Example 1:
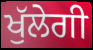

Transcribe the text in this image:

ਖੁੱਲੇਗੀ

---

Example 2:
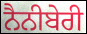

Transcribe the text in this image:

ਨੈਨੀਬੇਰੀ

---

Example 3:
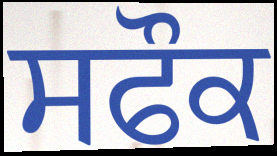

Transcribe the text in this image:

ਸਫੌਕ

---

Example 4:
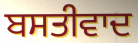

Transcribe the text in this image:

ਬਸਤੀਵਾਦ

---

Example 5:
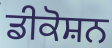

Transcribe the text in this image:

ਡੀਕੋਸ਼ਨ